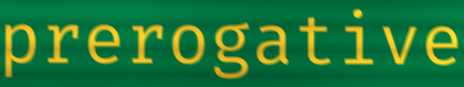
prerogative